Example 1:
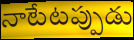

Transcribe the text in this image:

నాటేటప్పుడు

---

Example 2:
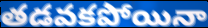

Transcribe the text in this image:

తడవకపోయినా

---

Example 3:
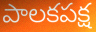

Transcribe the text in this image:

పాలకపక్ష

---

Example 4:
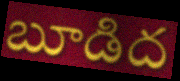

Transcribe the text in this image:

బూడిద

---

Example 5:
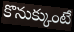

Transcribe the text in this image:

కొనుక్కుంటే